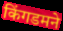
किंगडमने